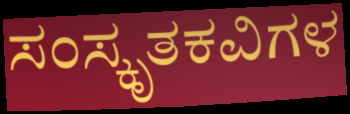
ಸಂಸ್ಕೃತಕವಿಗಳ